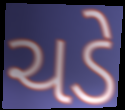
ચડે